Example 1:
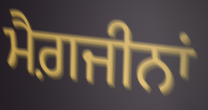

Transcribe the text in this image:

ਮੈਗ਼ਜੀਨਾਂ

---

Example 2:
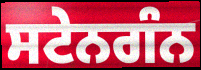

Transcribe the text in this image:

ਸਟੇਨਗੰਨ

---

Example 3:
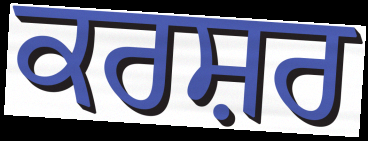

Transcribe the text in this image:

ਕਰਸ਼ਰ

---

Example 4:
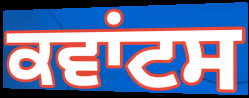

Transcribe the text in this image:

ਕਵਾਂਟਸ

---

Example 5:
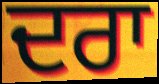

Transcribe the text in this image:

ਦਰਾ